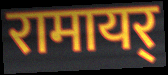
रामायर्